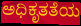
ಅಧಿಕೃತತೆಯ